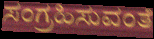
ಸಂಗ್ರಹಿಸುವಂತೆ